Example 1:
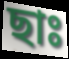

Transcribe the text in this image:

ছাঃ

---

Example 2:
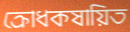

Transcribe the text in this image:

ক্রোধকষায়িত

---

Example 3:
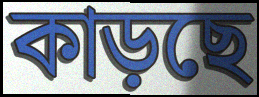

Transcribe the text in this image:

কাড়ছে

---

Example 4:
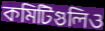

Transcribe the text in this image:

কমিটিগুলিও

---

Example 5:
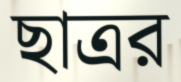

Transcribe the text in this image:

ছাত্রর